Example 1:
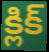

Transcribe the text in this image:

క్లిక్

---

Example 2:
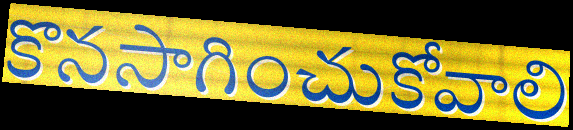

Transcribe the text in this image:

కొనసాగించుకోవాలి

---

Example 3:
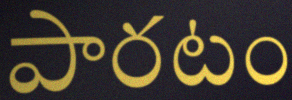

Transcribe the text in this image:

పారటం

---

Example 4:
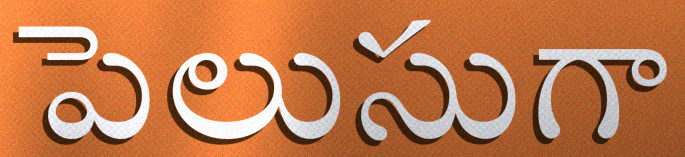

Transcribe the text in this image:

పెలుసుగా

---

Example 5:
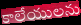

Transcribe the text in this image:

కాలేయులను